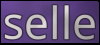
selle